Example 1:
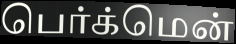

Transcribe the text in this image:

பெர்க்மென்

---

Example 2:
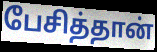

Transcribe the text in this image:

பேசித்தான்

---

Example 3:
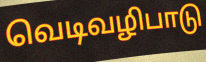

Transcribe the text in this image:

வெடிவழிபாடு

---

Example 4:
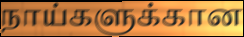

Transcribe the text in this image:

நாய்களுக்கான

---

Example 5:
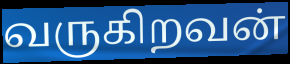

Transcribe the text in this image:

வருகிறவன்